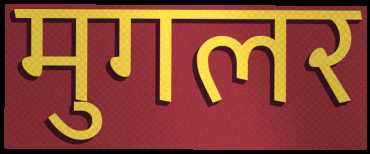
मुगलर